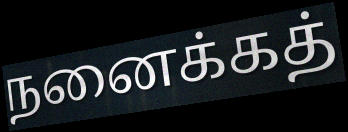
நனைக்கத்